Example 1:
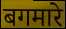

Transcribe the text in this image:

बगमारे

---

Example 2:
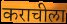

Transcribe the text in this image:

कराचीला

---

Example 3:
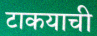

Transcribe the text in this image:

टाकयाची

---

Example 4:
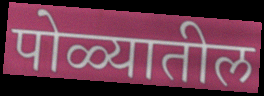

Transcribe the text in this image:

पोळ्यातील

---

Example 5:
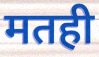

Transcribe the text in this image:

मतही